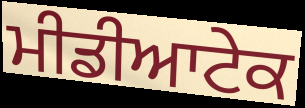
ਮੀਡੀਆਟੇਕ